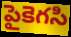
పైకెగసి